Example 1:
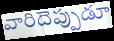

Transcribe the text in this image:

వారిదెప్పుడూ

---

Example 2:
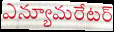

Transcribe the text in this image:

ఎన్యూమరేటర్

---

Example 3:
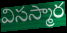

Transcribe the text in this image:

విసస్మార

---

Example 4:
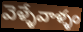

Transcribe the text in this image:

వెళ్ళేవాళ్ళం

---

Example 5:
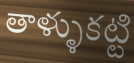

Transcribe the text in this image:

తాళ్ళుకట్టి